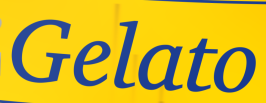
Gelato